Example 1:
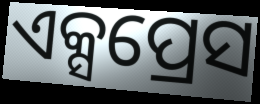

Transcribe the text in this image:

ଏକ୍ସପ୍ରେସ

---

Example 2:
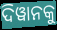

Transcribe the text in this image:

ଦିୱାନକୁ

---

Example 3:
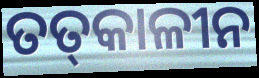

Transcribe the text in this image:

ତତ୍‍କାଳୀନ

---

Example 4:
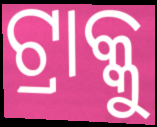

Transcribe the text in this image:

ଟ୍ରାକ୍କୁ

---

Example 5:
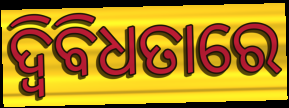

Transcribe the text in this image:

ଦ୍ୱିବିଧତାରେ